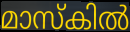
മാസ്കിൽ